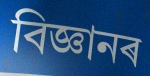
বিজ্ঞানৰ